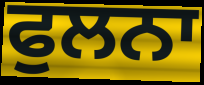
ਫੁਲਨਾ